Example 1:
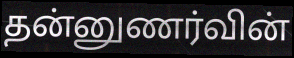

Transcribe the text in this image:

தன்னுணர்வின்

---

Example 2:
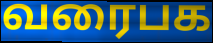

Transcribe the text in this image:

வரைபக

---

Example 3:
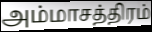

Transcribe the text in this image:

அம்மாசத்திரம்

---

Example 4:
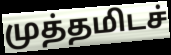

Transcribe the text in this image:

முத்தமிடச்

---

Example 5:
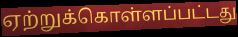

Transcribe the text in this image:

ஏற்றுக்கொள்ளப்பட்டது